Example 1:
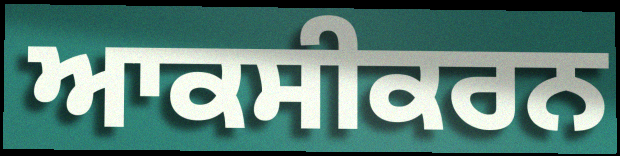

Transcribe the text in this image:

ਆਕਸੀਕਰਨ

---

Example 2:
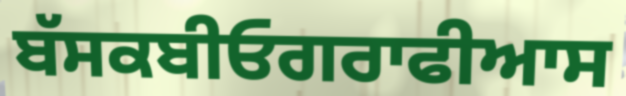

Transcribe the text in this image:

ਬੱਸਕਬੀਓਗਰਾਫੀਆਸ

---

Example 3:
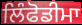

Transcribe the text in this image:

ਲਿੰਫੋਡੀਮਾ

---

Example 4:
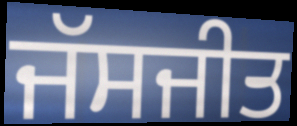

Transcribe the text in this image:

ਜੱਸਜੀਤ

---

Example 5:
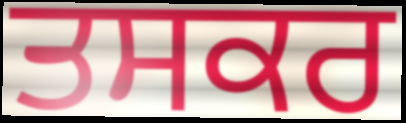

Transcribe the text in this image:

ਤਸਕਰ